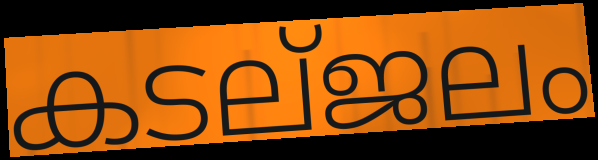
കടല്ജലം